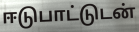
ஈடுபாட்டுடன்